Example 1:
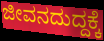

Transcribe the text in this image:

ಜೀವನದುದ್ದಕ್ಕೆ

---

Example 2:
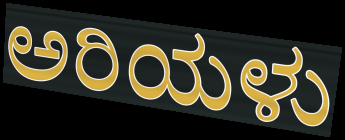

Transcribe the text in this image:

ಅರಿಯಳು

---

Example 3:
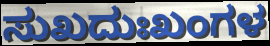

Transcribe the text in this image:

ಸುಖದುಃಖಂಗಳ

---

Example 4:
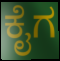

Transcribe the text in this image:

ಕೈಗ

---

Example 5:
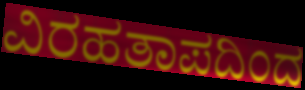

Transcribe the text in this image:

ವಿರಹತಾಪದಿಂದ